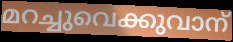
മറച്ചുവെക്കുവാന്